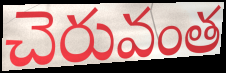
చెరువంత